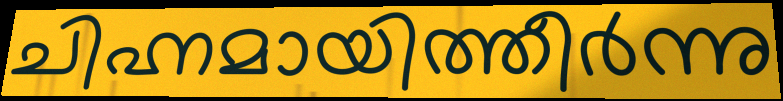
ചിഹ്നമായിത്തീർന്നു